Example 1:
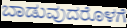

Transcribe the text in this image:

ಬಾಡುವುದರೊಳಗೆ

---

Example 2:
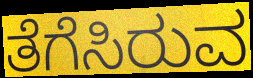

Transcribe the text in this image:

ತೆಗೆಸಿರುವ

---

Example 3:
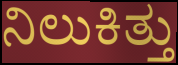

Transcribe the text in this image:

ನಿಲುಕಿತ್ತು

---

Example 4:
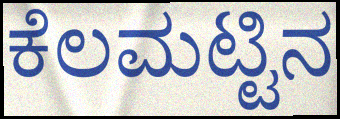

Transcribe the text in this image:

ಕೆಲಮಟ್ಟಿನ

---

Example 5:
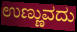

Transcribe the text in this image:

ಉಣ್ಣುವದು